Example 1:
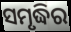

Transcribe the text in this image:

ସମୃଦ୍ଧିର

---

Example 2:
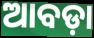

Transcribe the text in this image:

ଆବଡ଼ା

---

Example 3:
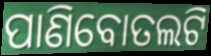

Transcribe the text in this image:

ପାଣିବୋତଲଟି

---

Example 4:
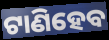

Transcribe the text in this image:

ଟାଣିହେବ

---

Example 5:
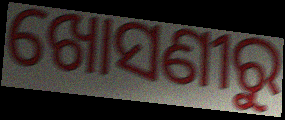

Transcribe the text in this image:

ଖୋସଣୀରୁ